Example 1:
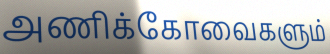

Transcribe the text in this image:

அணிக்கோவைகளும்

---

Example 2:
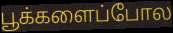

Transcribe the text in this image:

பூக்களைப்போல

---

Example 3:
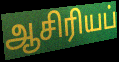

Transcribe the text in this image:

ஆசிரியப்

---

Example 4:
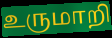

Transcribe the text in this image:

உருமாறி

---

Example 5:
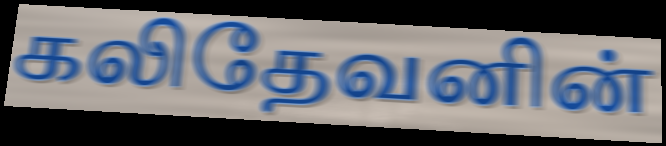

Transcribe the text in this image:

கலிதேவனின்